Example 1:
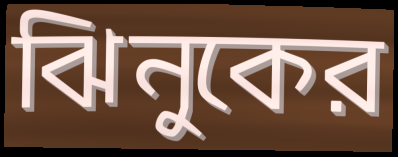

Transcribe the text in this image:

ঝিনুকের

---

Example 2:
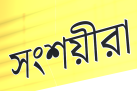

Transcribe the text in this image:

সংশয়ীরা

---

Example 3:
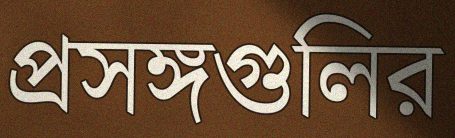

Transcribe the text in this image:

প্রসঙ্গগুলির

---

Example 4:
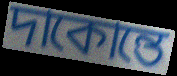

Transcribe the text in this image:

দাকোন্তে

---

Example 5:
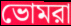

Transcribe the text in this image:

ভোমরা